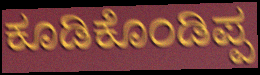
ಕೂಡಿಕೊಂಡಿಪ್ಪ